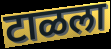
टाळला